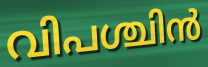
വിപശ്ചിൻ